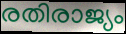
രതിരാജ്യം